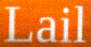
Lail